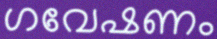
ഗവേഷണം